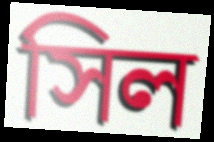
সিল